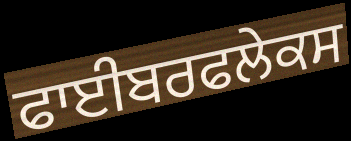
ਫਾਈਬਰਫਲੇਕਸ